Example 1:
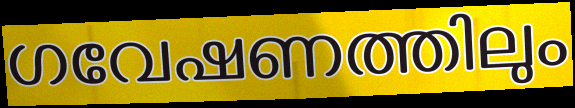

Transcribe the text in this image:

ഗവേഷണത്തിലും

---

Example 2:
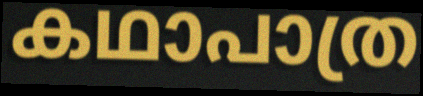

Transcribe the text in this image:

കഥാപാത്ര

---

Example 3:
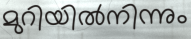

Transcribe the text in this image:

മുറിയിൽനിന്നും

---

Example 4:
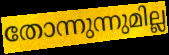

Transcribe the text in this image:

തോന്നുന്നുമില്ല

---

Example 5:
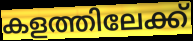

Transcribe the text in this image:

കളത്തിലേക്ക്